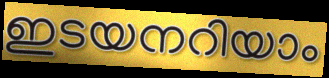
ഇടയനറിയാം